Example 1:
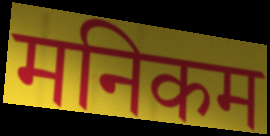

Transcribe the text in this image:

मनिकम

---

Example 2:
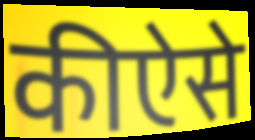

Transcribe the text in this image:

कीऐसे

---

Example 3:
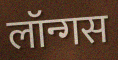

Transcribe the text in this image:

लॉन्गस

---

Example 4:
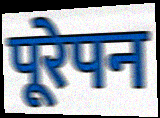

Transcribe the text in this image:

पूरेपन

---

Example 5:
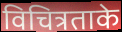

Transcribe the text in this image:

विचित्रताके